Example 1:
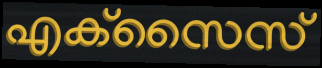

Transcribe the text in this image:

എക്‌സൈസ്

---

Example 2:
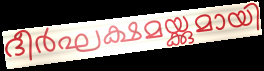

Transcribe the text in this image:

ദീർഘക്ഷമയ്ക്കുമായി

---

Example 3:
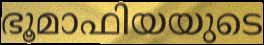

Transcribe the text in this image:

ഭൂമാഫിയയുടെ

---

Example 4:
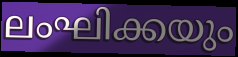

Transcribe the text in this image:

ലംഘിക്കയും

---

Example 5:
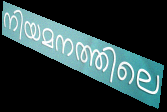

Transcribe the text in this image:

നിയമനത്തിലെ